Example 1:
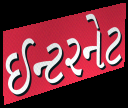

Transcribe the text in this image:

ઈન્ટરનેટ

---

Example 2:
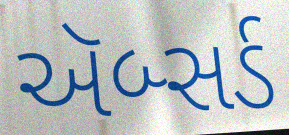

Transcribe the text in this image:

ઍબ્સર્ડ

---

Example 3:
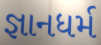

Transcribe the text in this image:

જ્ઞાનધર્મ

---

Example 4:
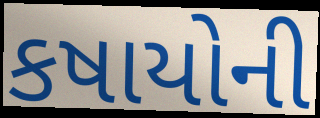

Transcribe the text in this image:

કષાયોની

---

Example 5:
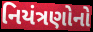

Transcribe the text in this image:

નિયંત્રણોનો